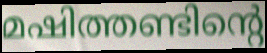
മഷിത്തണ്ടിന്റെ